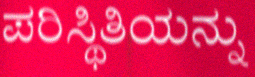
ಪರಿಸ್ಥಿತಿಯನ್ನು